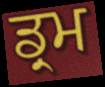
ਡ੍ਰਮ